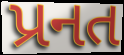
પ્રનત